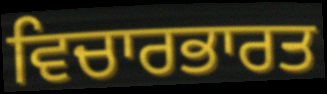
ਵਿਚਾਰਭਾਰਤ